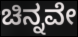
ಚಿನ್ನವೇ